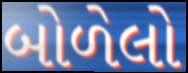
બોળેલો